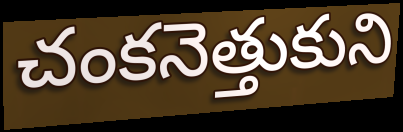
చంకనెత్తుకుని